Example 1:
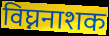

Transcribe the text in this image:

विघ्ननाशक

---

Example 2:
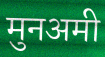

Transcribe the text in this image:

मुनअमी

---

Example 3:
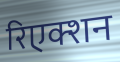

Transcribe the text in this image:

रिएक्शन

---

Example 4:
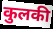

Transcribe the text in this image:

कुलकी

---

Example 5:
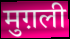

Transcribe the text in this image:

मुग़ली